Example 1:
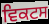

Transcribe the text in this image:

ਵਿਕਟਸ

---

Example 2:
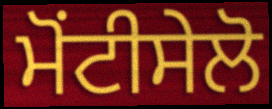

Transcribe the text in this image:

ਮੋਂਟੀਸੇਲੋ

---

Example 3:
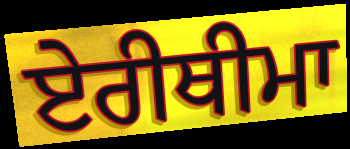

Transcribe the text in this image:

ਏਰੀਥੀਮਾ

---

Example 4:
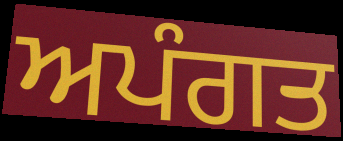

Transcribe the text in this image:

ਅਪੰਗਤ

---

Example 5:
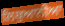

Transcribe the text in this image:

ਲਿਥੁਆਨੀਆ